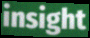
insight